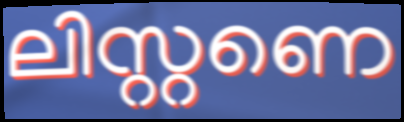
ലിസ്റ്റണെ